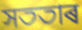
সততাৰ